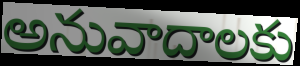
అనువాదాలకు